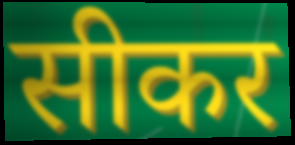
सीकर